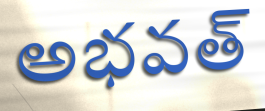
అభవత్